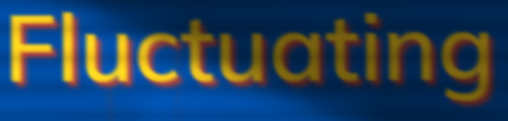
Fluctuating